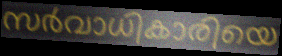
സർവാധികാരിയെ